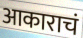
आकाराचं